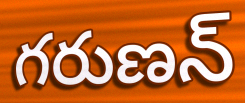
గరుణన్